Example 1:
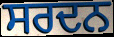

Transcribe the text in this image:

ਸਰਦਨ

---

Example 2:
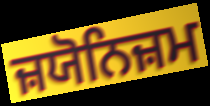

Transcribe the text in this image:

ਜ਼ਯੋਨਿਜ਼ਮ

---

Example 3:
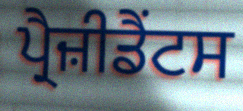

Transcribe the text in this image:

ਪ੍ਰੈਜ਼ੀਡੈਂਟਸ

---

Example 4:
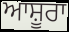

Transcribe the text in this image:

ਆਸ਼ੂਰਾ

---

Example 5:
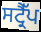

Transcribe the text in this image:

ਸਟ੍ਰੈੱਪ